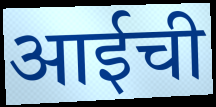
आईची